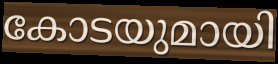
കോടയുമായി